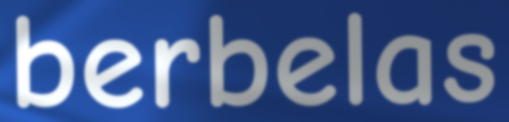
berbelas